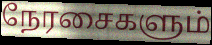
நேரசைகளும்